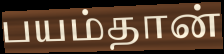
பயம்தான்